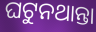
ଘଟୁନଥାନ୍ତା